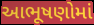
આભૂષણોમાં